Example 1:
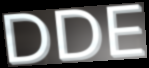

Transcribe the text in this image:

DDE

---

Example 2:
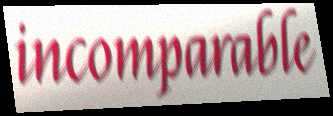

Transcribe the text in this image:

incomparable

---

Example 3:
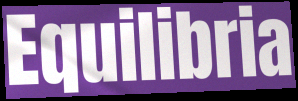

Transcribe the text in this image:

Equilibria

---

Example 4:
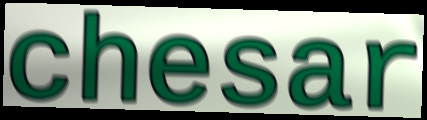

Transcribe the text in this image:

chesar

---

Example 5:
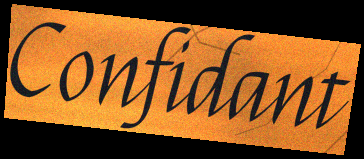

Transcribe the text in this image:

Confidant